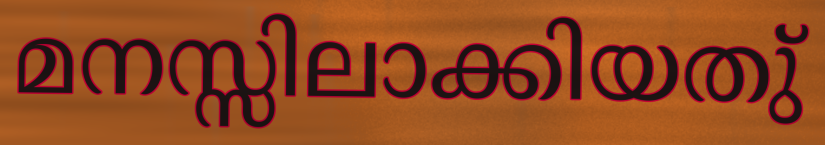
മനസ്സിലാക്കിയതു്